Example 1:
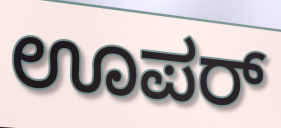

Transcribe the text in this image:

ಊಪರ್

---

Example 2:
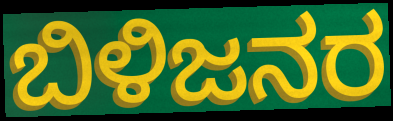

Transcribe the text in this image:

ಬಿಳಿಜನರ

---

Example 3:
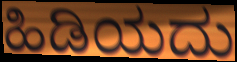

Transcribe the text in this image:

ಹಿಡಿಯದು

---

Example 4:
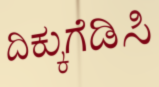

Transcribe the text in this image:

ದಿಕ್ಕುಗೆಡಿಸಿ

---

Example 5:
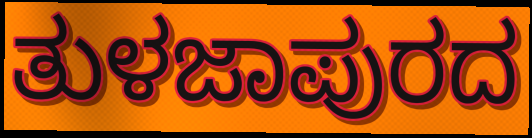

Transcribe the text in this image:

ತುಳಜಾಪುರದ